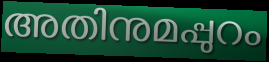
അതിനുമപ്പുറം